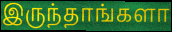
இருந்தாங்களா